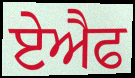
ਏਐਫ